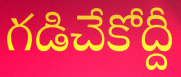
గడిచేకోద్దీ